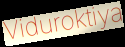
Viduroktiya